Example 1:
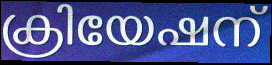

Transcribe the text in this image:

ക്രിയേഷന്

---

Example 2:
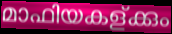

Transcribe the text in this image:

മാഫിയകള്ക്കും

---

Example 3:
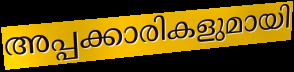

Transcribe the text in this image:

അപ്പക്കാരികളുമായി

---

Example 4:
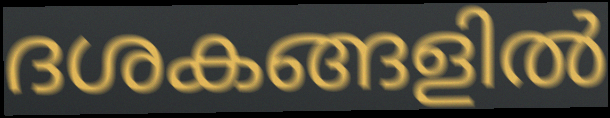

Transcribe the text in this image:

ദശകങ്ങളിൽ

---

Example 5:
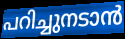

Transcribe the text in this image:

പറിച്ചുനടാൻ